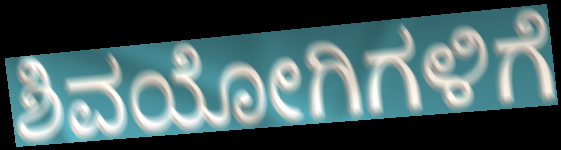
ಶಿವಯೋಗಿಗಳಿಗೆ